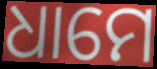
ଧାମେ